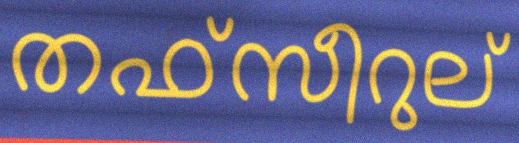
തഫ്സീറുല്